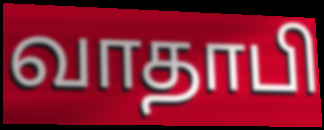
வாதாபி